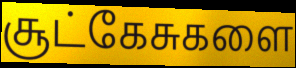
சூட்கேசுகளை